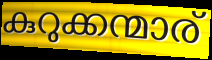
കുറുക്കന്മാര്